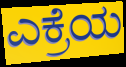
ಎಕ್ರೆಯ